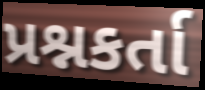
પ્રશ્નકર્તા